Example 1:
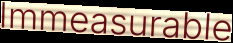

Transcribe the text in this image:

Immeasurable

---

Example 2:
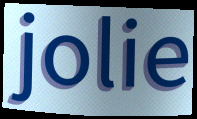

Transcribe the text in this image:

jolie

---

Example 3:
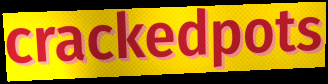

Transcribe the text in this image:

crackedpots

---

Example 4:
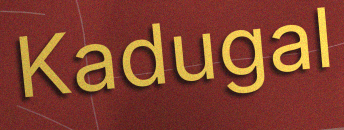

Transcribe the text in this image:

Kadugal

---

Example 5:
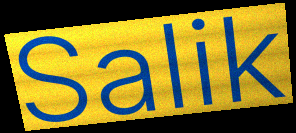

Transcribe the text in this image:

Salik